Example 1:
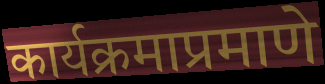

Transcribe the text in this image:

कार्यक्रमाप्रमाणे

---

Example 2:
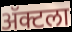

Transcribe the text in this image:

ॲक्टला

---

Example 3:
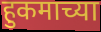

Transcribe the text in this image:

हुकमाच्या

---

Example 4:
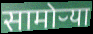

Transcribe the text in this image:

सामोऱ्या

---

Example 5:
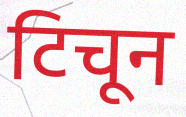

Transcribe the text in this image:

टिचून